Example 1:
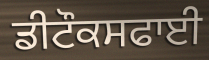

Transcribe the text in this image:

ਡੀਟੌਕਸਫਾਈ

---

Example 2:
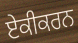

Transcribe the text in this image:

ਏਕੀਕਰਨ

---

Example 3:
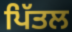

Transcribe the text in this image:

ਪਿੱਤਲ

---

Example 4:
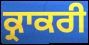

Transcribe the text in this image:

ਕ੍ਰਾਕਰੀ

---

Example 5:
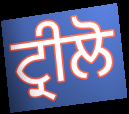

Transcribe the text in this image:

ਟ੍ਰੀਲੋ